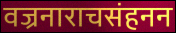
वज्रनाराचसंहनन